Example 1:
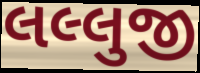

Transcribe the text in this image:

લલ્લુજી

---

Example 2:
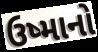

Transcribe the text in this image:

ઉષ્માનો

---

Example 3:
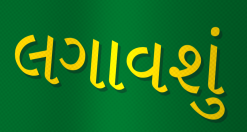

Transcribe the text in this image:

લગાવશું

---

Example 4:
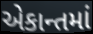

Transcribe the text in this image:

એકાન્તમાં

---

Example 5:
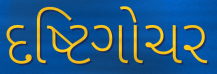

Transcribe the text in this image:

દષ્ટિગોચર